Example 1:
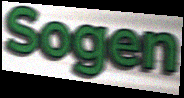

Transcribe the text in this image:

Sogen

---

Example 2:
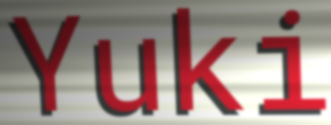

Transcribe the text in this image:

Yuki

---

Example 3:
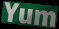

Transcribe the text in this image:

Yum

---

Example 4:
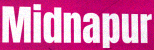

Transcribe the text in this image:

Midnapur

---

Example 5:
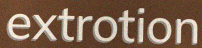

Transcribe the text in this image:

extrotion